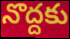
నొద్దకు